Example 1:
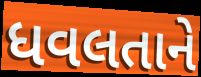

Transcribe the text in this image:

ધવલતાને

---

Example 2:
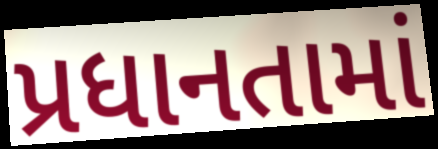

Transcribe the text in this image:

પ્રધાનતામાં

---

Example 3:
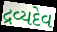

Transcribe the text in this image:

દ્રવ્યદેવ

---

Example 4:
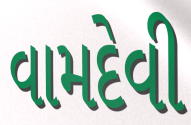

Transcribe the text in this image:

વામદેવી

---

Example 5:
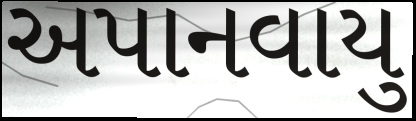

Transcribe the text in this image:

અપાનવાયુ